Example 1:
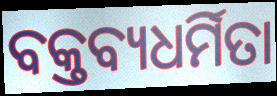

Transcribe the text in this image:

ବକ୍ତବ୍ୟଧର୍ମିତା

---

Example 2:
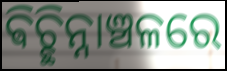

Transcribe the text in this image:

ଵିଚ୍ଛିନ୍ନାଞ୍ଚଳରେ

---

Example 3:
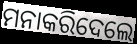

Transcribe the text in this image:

ମନାକରିଦେଲେ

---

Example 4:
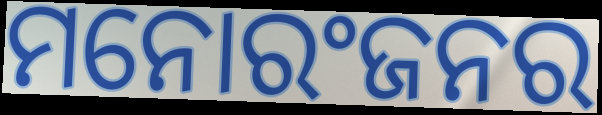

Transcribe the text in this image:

ମନୋରଂଜନର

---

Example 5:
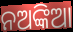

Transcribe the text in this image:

ନଅଙ୍କିଆ